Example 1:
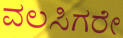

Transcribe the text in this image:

ವಲಸಿಗರೇ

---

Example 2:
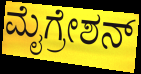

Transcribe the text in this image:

ಮೈಗ್ರೇಶನ್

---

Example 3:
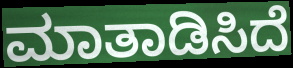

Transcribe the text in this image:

ಮಾತಾಡಿಸಿದೆ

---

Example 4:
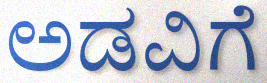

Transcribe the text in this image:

ಅಡವಿಗೆ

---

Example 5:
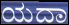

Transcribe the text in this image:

ಯದಾ